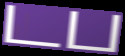
டப